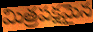
మిత్రపక్షమైన